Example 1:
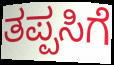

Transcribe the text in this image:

ತಪ್ಪಸಿಗೆ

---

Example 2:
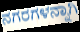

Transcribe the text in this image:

ನಗರಗಳನ್ನಾಗಿ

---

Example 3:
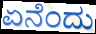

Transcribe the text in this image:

ಏನೆಂದು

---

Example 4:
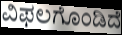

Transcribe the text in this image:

ವಿಫಲಗೊಂಡಿದೆ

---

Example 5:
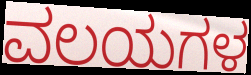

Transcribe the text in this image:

ವಲಯಗಳ